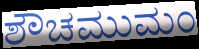
ಶೌಚಮುಮಂ